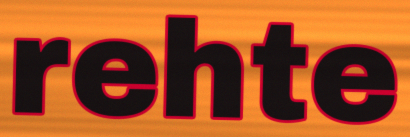
rehte